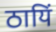
ठायिं